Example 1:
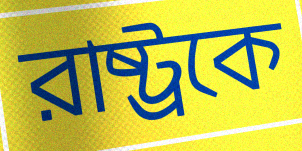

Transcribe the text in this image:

রাষ্ট্রকে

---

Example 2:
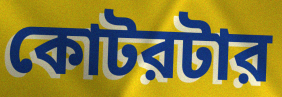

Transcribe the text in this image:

কোটরটার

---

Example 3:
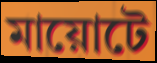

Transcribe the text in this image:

মায়োটে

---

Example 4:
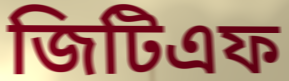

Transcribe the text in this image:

জিটিএফ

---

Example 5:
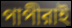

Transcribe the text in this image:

পাপীরাই